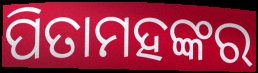
ପିତାମହଙ୍କର